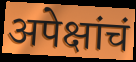
अपेक्षांचं